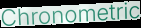
Chronometric